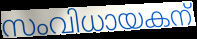
സംവിധായകന്